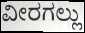
ವೀರಗಲ್ಲು